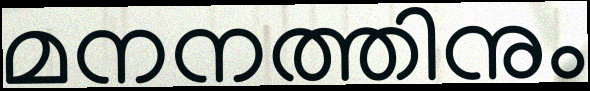
മനനത്തിനും